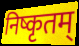
निष्कृतम्